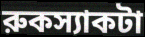
রুকস্যাকটা